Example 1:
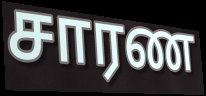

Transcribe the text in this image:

சாரண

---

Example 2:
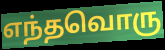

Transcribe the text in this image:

எந்தவொரு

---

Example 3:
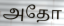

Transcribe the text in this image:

அதோ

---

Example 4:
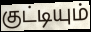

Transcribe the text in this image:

குட்டியும்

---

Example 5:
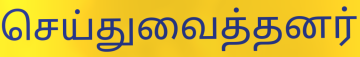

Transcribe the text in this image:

செய்துவைத்தனர்